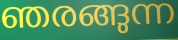
ഞരങ്ങുന്ന